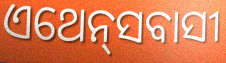
ଏଥେନ୍‌ସବାସୀ